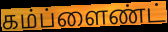
கம்ப்ளைண்ட்